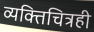
व्यक्तिचित्रही